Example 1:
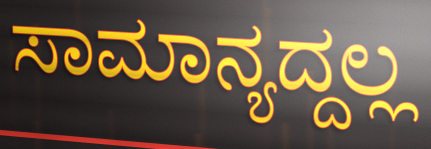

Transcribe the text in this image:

ಸಾಮಾನ್ಯದ್ದಲ್ಲ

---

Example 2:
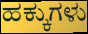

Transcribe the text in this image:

ಹಕ್ಕುಗಳು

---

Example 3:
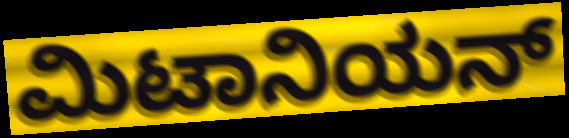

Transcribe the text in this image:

ಮಿಟಾನಿಯನ್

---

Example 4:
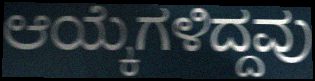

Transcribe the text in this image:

ಆಯ್ಕೆಗಳಿದ್ದವು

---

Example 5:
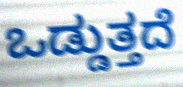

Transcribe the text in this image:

ಒಡ್ಡುತ್ತದೆ